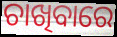
ଚାଖିବାରେ